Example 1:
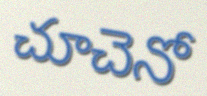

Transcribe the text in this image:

చూచెనో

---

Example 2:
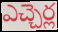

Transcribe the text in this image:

ఎచ్చెర్ల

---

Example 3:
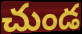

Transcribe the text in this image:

చుండ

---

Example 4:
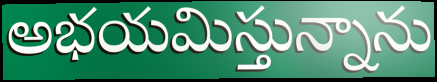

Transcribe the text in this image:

అభయమిస్తున్నాను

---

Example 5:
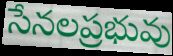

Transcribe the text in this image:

సేనలప్రభువు